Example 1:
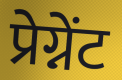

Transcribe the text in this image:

प्रेग्नेंट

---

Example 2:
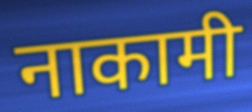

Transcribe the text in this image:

नाकामी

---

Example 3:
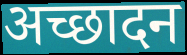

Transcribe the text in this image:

अच्छादन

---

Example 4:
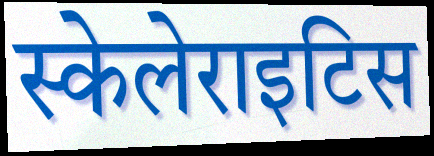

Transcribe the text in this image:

स्केलेराइटिस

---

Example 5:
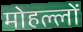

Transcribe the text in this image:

मोहल्लों